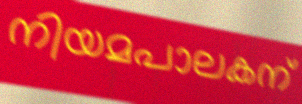
നിയമപാലകന്